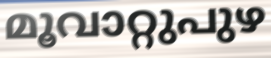
മൂവാറ്റുപുഴ